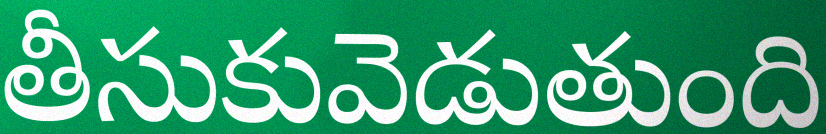
తీసుకువెడుతుంది